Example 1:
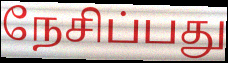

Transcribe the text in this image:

நேசிப்பது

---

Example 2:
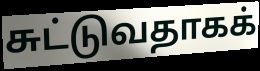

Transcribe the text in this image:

சுட்டுவதாகக்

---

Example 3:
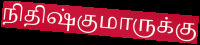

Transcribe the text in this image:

நிதிஷ்குமாருக்கு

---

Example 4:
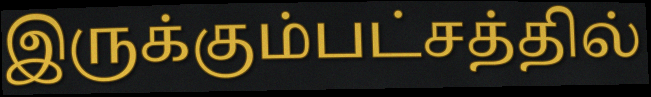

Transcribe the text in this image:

இருக்கும்பட்சத்தில்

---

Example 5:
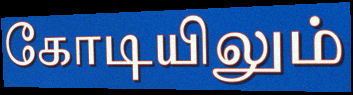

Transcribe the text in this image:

கோடியிலும்